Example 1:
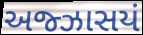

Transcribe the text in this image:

અજ્ઝાસયં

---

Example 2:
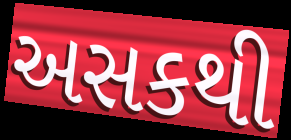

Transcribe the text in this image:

અસકથી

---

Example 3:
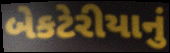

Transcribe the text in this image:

બેકટેરીયાનું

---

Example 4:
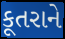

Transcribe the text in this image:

કૂતરાને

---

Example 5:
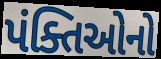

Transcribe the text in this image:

પંક્તિઓનો